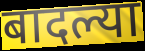
बादल्या